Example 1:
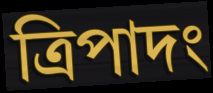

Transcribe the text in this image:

ত্রিপাদং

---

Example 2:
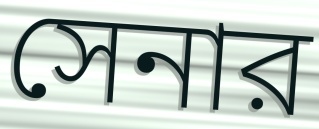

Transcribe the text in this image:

সেনার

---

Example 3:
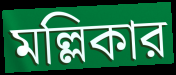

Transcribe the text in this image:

মল্লিকার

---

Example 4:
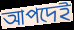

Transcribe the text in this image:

আপদেই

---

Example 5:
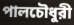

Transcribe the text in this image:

পালচৌধুরী